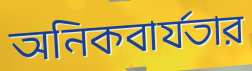
অনিকবার্যতার